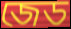
জেড